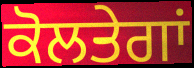
ਕੋਲਤੇਗਾਂ